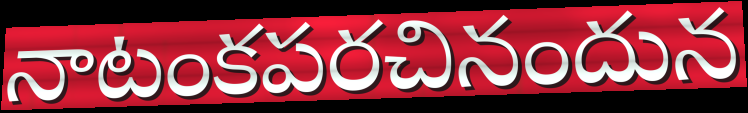
నాటంకపరచినందున